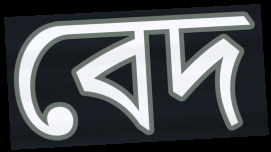
বেদ